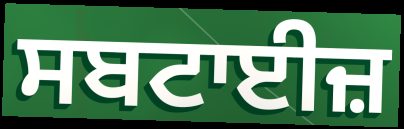
ਸਬਟਾਈਜ਼